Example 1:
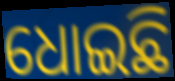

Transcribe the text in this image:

ଧୋଇଛି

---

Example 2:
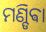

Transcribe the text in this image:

ମଣ୍ଡିଵା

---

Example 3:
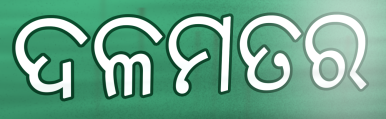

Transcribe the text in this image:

ଦଳମତର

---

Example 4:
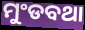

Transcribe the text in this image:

ମୁଂଡବଥା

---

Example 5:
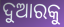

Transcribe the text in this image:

ଦୁଆରକୁ